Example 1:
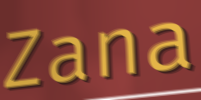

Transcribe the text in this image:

Zana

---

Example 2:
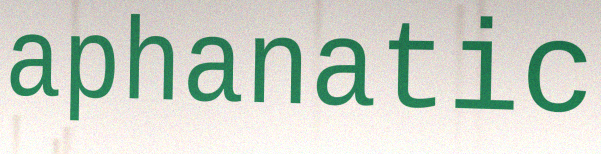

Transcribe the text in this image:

aphanatic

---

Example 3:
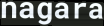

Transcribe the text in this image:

nagara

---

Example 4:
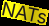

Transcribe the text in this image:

NATs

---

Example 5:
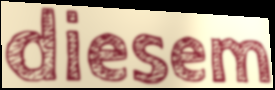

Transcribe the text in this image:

diesem